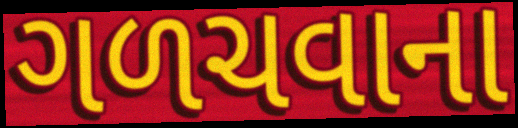
ગળચવાના